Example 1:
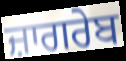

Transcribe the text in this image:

ਜ਼ਾਗਰੇਬ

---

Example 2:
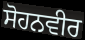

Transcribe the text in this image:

ਸੋਹਨਵੀਰ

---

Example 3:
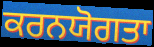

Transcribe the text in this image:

ਕਰਨਯੋਗਤਾ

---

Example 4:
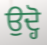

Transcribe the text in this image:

ਉਦ੍ਹੋ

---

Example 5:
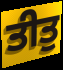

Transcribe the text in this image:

ਤੀਤੁ